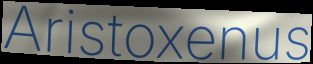
Aristoxenus